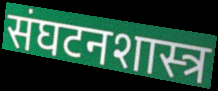
संघटनशास्त्र